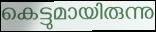
കെട്ടുമായിരുന്നു